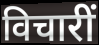
विचारीं